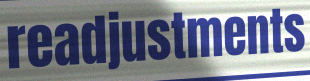
readjustments